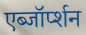
एब्जॉर्प्शन